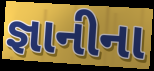
જ્ઞાનીના